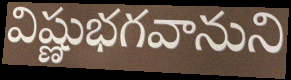
విష్ణుభగవానుని